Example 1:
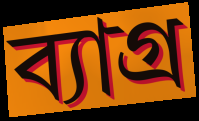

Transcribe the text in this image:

ব্যাগ্র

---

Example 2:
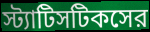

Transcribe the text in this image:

স্ট্যাটিসটিকসের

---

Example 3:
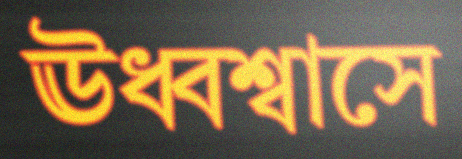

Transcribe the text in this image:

ঊধ্বশ্বাসে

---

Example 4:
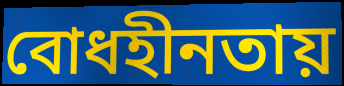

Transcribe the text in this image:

বোধহীনতায়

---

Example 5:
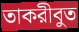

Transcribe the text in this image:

তাকরীবুত